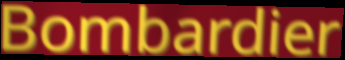
Bombardier